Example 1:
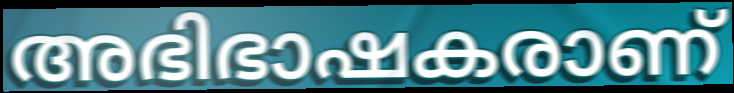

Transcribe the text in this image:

അഭിഭാഷകരാണ്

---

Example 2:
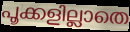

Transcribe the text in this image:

പൂക്കളില്ലാതെ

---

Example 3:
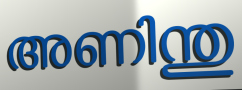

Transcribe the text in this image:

അണിന്തു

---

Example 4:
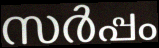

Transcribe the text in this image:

സർപ്പം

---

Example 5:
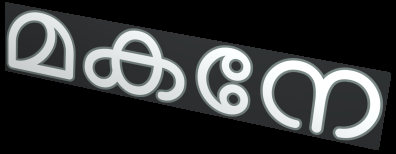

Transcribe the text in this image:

മകനേ